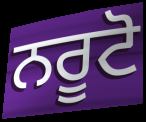
ਨਰੂਟੋ